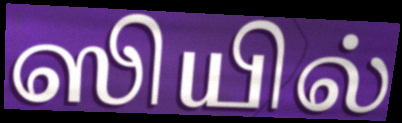
ஸியில்